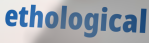
ethological